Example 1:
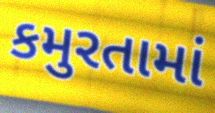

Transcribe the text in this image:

કમુરતામાં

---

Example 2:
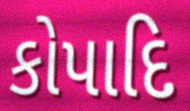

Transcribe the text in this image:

કોપાદિ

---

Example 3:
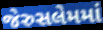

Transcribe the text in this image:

જેરુસલેમમાં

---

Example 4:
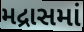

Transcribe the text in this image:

મદ્રાસમાં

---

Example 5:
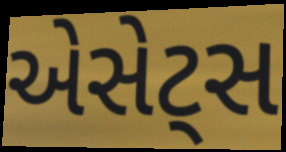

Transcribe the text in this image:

એસેટ્સ